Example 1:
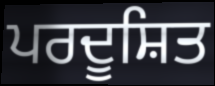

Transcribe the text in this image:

ਪਰਦੂਸ਼ਿਤ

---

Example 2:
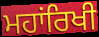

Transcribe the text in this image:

ਮਹਾਂਰਿਖੀ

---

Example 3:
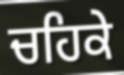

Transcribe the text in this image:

ਚਹਿਕੇ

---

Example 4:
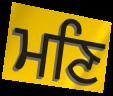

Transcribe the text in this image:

ਮਣਿ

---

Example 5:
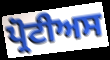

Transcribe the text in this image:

ਪ੍ਰੋਟੀਅਸ